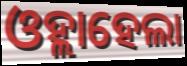
ଓହ୍ଲାହେଲା